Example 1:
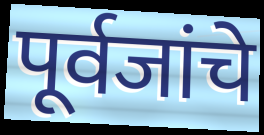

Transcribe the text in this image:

पूर्वजांचे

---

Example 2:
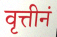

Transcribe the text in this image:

वृत्तीनं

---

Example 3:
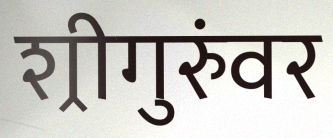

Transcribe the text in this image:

श्रीगुरुंवर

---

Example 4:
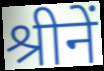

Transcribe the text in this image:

श्रीनें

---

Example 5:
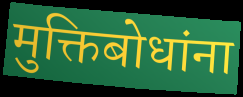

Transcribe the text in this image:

मुक्तिबोधांना